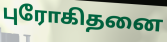
புரோகிதனை